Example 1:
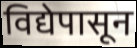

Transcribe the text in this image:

विद्येपासून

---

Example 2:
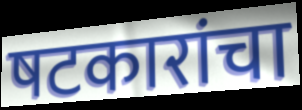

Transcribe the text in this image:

षटकारांचा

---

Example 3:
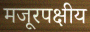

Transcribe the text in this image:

मजूरपक्षीय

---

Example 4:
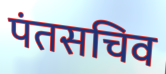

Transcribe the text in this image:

पंतसचिव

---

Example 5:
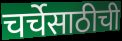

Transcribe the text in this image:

चर्चेसाठीची